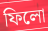
ফিলো